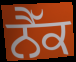
ਨੈੱਕ